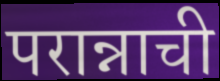
परान्नाची